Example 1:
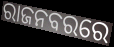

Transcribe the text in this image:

ରାଜନବରରେ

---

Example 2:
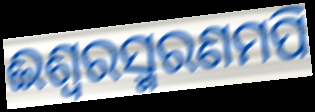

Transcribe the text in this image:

ଈଶ୍ଵରସ୍ମରଣମପି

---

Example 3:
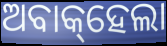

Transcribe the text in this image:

ଅବାକ୍‌ହେଲା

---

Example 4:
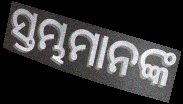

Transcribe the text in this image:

ସ୍ତମ୍ଭମାନଙ୍କ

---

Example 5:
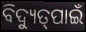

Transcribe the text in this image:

ବିଦ୍ୟୁତ୍‌ପାଇଁ